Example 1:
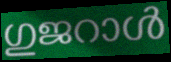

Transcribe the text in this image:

ഗുജറാൾ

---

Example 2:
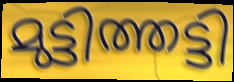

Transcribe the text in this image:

മുട്ടിത്തട്ടി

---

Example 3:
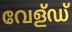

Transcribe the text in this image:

വേള്ഡ്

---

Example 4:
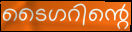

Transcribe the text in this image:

ടൈഗറിന്റെ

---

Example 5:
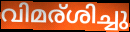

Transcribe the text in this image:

വിമര്ശിച്ചു